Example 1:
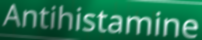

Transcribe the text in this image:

Antihistamine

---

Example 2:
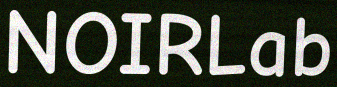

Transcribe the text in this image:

NOIRLab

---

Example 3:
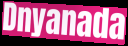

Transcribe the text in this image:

Dnyanada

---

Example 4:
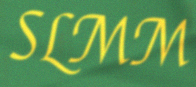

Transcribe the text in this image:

SLMM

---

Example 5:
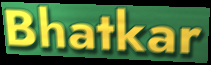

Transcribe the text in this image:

Bhatkar